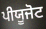
ਪੀਯੂਜੋਟ